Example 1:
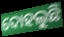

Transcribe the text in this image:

ଦୋହଲୁଛି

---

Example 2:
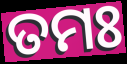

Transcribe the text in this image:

ତମଃ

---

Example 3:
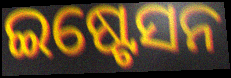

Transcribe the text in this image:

ଇଷ୍ଟେସନ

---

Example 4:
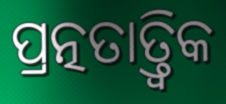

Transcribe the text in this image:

ପ୍ରତ୍ନତାତ୍ତ୍ଵିକ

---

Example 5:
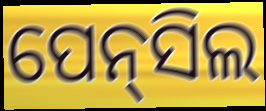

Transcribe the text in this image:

ପେନ୍‌ସିଲ